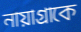
নায়াগ্রাকে